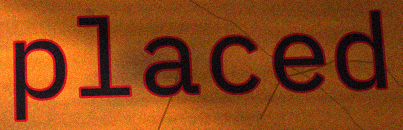
placed